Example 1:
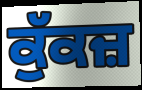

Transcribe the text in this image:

ਕੁੱਕਜ਼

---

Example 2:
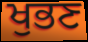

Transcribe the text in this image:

ਖੁਭਣ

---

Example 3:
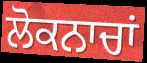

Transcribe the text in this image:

ਲੋਕਨਾਚਾਂ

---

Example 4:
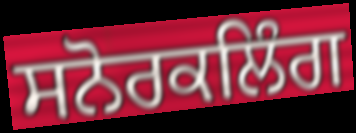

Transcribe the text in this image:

ਸਨੋਰਕਲਿੰਗ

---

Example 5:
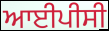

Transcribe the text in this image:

ਆਈਪੀਸੀ